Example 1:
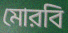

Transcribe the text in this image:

মোরবি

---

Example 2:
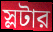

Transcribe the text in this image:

স্লটার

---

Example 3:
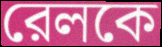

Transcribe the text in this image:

রেলকে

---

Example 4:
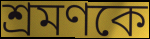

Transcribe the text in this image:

শ্রমণকে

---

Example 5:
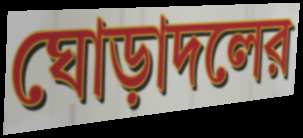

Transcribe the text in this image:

ঘোড়াদলের